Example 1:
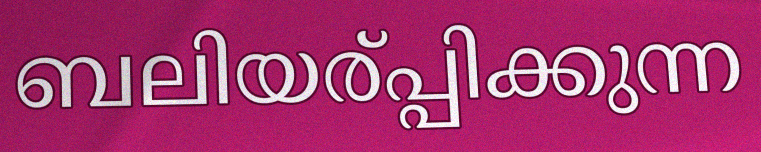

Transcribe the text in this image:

ബലിയര്പ്പിക്കുന്ന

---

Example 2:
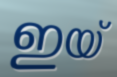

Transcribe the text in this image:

ഇയ്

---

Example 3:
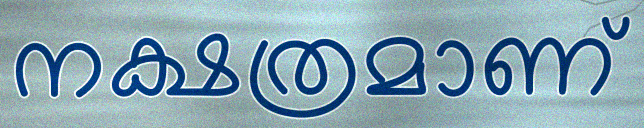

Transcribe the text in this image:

നക്ഷത്രമാണ്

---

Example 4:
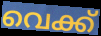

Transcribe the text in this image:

വെക്ക്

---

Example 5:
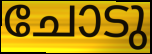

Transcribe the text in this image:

ചോടു